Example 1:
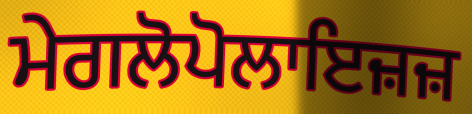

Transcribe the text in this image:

ਮੇਗਲੋਪੋਲਾਇਜ਼ਜ਼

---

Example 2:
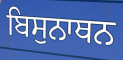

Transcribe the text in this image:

ਬਿਸੁਨਾਥਨ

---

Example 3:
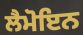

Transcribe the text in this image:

ਲੈਮੋਇਨ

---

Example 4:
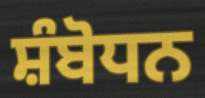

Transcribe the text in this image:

ਸ਼ੰਬੋਧਨ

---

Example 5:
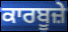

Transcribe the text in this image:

ਕਾਰਬੂਜ਼ੇ